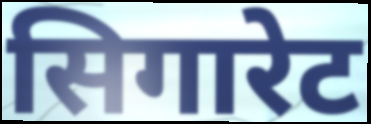
सिगारेट